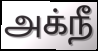
அக்நீ